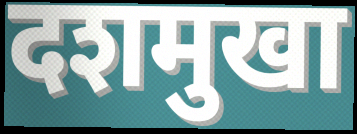
दशमुखा